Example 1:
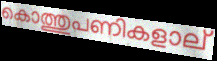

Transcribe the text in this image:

കൊത്തുപണികളാല്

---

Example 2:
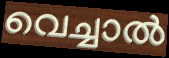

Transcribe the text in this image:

വെച്ചാൽ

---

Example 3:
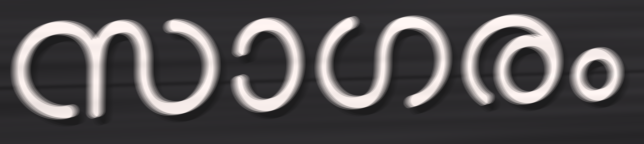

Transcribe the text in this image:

സാഗരം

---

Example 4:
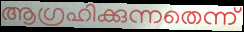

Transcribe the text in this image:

ആഗ്രഹിക്കുന്നതെന്ന്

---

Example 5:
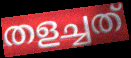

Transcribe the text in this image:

തളച്ചത്